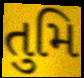
તુમિ